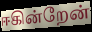
ஈகின்றேன்